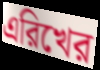
এরিখের